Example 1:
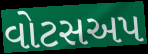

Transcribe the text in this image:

વોટસઅપ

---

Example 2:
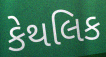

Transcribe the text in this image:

કેથલિક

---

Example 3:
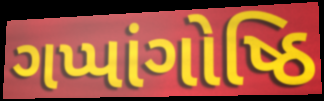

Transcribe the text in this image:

ગપ્પાંગોષ્ઠિ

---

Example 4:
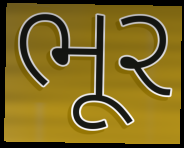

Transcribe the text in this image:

ભૂર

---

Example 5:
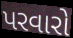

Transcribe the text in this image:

પરવારો